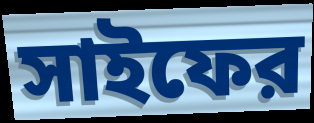
সাইফের